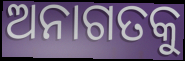
ଅନାଗତକୁ